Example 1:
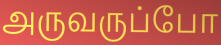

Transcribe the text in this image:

அருவருப்போ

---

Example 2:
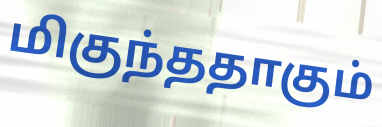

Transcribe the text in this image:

மிகுந்ததாகும்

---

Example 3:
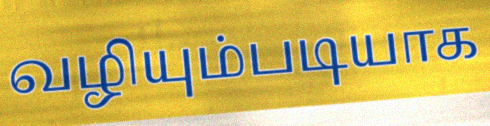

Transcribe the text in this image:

வழியும்படியாக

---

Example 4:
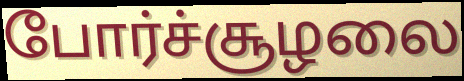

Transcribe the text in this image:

போர்ச்சூழலை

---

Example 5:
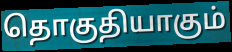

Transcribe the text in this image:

தொகுதியாகும்